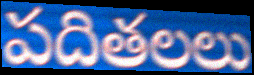
పదితలలు